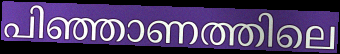
പിഞ്ഞാണത്തിലെ